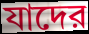
যাদের